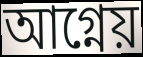
আগ্নেয়